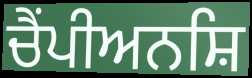
ਚੈਂਪੀਅਨਸ਼ਿ